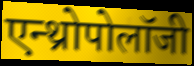
एन्थ्रोपोलॉजी